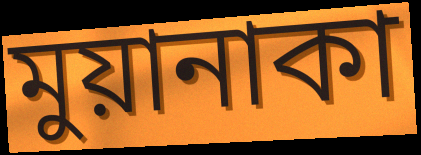
মুয়ানাকা